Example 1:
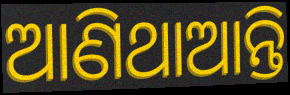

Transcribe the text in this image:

ଆଣିଥାଆନ୍ତି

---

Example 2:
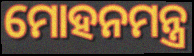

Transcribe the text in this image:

ମୋହନମନ୍ତ୍ର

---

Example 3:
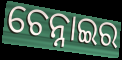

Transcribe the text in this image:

ଚେନ୍ନାଇର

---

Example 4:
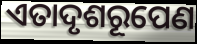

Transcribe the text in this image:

ଏତାଦୃଶରୂପେଣ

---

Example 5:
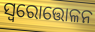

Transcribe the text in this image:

ସ୍ବରୋତ୍ତୋଳନ